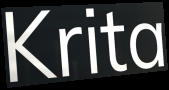
Krita